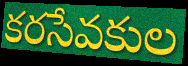
కరసేవకుల